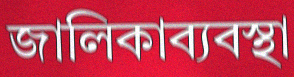
জালিকাব্যবস্থা